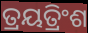
ତ୍ରୟତ୍ରିଂଶ